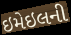
ઇમેઇલની